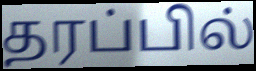
தரப்பில்